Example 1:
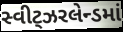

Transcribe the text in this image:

સ્વીટ્ઝરલેન્ડમાં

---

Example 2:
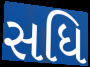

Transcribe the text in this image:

સધિ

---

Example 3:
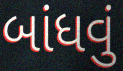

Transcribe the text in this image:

બાંધવું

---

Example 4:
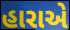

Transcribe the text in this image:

હારાએ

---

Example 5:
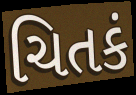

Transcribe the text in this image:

ચિતકં